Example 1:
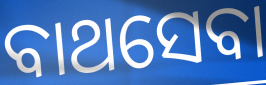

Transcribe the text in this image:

ବାଥସେବା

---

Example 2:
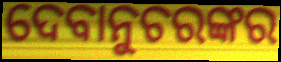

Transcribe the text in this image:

ଦେବାନୁଚରଙ୍କର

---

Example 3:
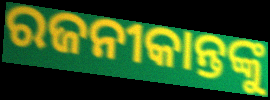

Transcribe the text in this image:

ରଜନୀକାନ୍ତଙ୍କୁ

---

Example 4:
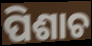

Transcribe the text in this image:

ପିଶାଚ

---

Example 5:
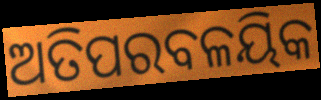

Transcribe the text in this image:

ଅତିପରବଳୟିକ